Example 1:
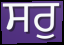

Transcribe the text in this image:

ਸਰੁ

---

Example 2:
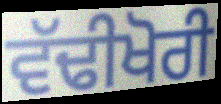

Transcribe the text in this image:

ਵੱਢੀਖੋਰੀ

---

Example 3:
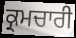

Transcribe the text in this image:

ਕ੍ਰਮਚਾਰੀ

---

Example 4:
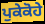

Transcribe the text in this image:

ਪੁਕੇਕੋਹੇ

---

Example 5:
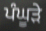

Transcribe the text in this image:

ਪੰਘੂੜੇ